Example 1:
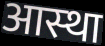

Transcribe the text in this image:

आस्‍था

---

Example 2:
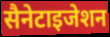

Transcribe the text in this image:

सैनेटाइजेशन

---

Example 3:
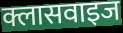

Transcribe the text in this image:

क्लासवाइज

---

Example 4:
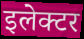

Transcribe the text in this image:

इलेक्टर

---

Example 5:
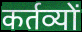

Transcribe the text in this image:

कर्तव्यों